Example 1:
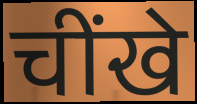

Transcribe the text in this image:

चींखे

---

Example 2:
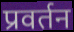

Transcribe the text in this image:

प्रवर्तन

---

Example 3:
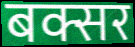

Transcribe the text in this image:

बक्सर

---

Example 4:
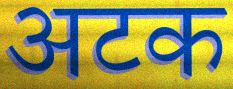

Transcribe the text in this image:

अटक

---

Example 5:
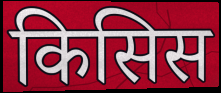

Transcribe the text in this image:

किसिस